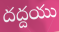
దద్దయు